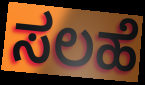
ಸಲಹೆ